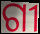
ଗୀ